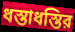
ধস্তাধস্তির